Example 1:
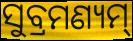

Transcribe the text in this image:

ସୁବ୍ରମଣ୍ୟମ୍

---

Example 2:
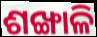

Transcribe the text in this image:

ଶଙ୍ଖାଳି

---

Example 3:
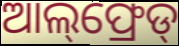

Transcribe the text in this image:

ଆଲ୍‌ଫ୍ରେଡ୍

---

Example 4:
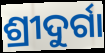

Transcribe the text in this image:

ଶ୍ରୀଦୁର୍ଗା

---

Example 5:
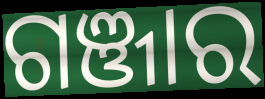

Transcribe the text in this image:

ଗଞ୍ଜାର